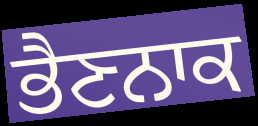
ਭੈਣਨਾਕ